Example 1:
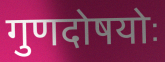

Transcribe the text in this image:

गुणदोषयोः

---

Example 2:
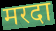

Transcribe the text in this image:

मरदा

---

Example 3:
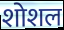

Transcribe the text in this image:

शोशल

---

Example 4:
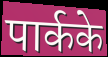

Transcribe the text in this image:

पार्कके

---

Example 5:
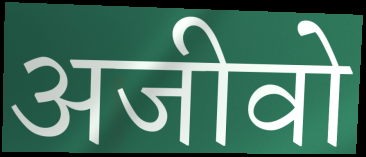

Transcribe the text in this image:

अजीवो